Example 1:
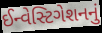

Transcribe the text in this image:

ઈન્વેસ્ટિગેશનનું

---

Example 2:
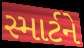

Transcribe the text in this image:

સ્માર્ટને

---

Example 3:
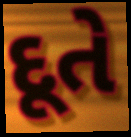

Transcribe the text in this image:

દૂતે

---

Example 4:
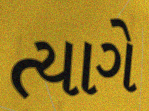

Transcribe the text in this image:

ત્યાગે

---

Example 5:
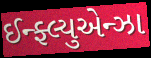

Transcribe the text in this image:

ઈન્ફ્લ્યુએન્ઝા